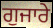
ਗੁਜਾਰੇ